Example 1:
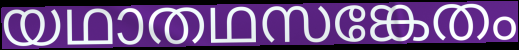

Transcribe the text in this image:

യഥാതഥസങ്കേതം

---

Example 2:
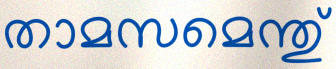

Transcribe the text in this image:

താമസമെന്തു്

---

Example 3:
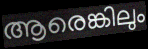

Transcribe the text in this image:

ആരെങ്കിലും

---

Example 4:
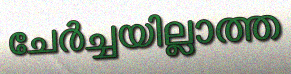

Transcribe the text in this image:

ചേർച്ചയില്ലാത്ത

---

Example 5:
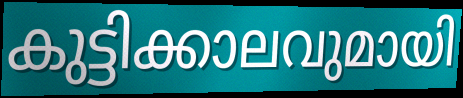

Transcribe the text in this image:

കുട്ടിക്കാലവുമായി